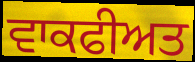
ਵਾਕਫੀਅਤ